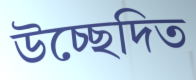
উচ্ছেদিত